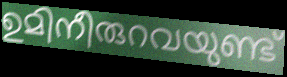
ഉമിനീരുറവയുണ്ട്